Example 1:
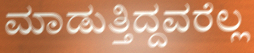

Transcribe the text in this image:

ಮಾಡುತ್ತಿದ್ದವರೆಲ್ಲ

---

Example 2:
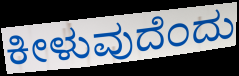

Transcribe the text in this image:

ಕೀಳುವುದೆಂದು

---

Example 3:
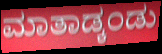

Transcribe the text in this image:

ಮಾತಾಡ್ಕಂಡು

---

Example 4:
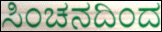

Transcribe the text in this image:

ಸಿಂಚನದಿಂದ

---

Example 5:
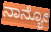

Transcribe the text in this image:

ನಾನ್ಯೋ